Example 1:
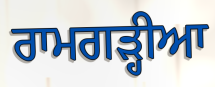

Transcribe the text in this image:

ਰਾਮਗਡ਼੍ਹੀਆ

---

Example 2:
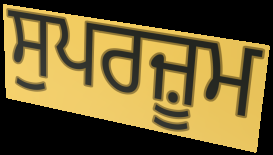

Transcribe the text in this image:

ਸੁਪਰਜ਼ੂਮ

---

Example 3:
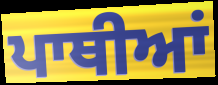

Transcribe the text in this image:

ਪਾਥੀਆਂ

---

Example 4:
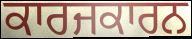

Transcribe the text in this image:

ਕਾਰਜਕਾਰਨ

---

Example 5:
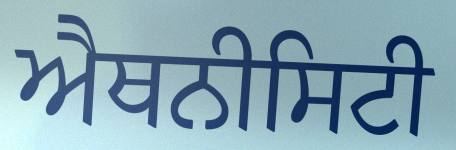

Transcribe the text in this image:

ਐਥਨੀਸਿਟੀ